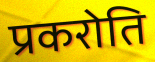
प्रकरोति